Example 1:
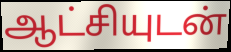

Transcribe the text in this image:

ஆட்சியுடன்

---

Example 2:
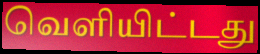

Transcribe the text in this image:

வெளியிட்டது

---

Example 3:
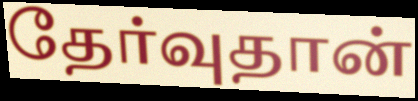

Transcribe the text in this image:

தேர்வுதான்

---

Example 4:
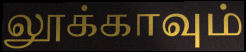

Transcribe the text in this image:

லூக்காவும்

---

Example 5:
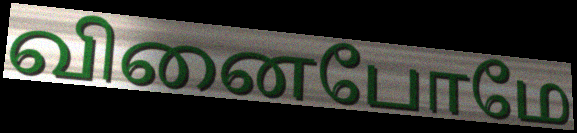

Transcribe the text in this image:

வினைபோமே